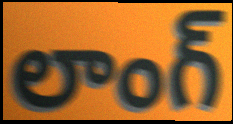
లాంగ్